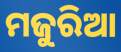
ମଜୁରିଆ